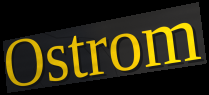
Ostrom